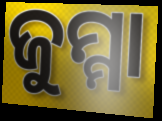
ଜୁମ୍ମା